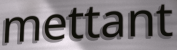
mettant